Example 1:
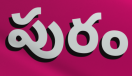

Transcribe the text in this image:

పురం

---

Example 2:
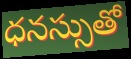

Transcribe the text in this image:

ధనస్సుతో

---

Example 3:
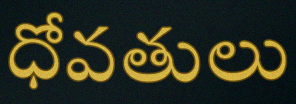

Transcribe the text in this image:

ధోవతులు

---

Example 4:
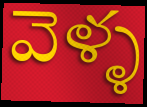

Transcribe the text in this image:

వెళ్ళ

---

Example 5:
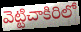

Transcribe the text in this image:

వెట్టిచాకిరిలో